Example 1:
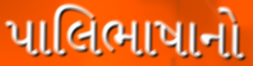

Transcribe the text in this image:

પાલિભાષાનો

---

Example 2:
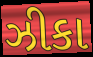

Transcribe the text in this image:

ઝીકા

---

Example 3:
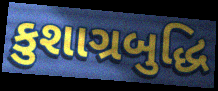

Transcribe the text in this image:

કુશાગ્રબુદ્ધિ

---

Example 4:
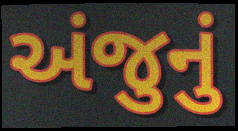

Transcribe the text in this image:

અંજુનું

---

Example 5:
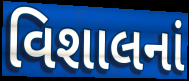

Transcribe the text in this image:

વિશાલનાં